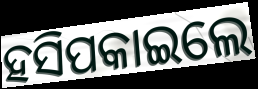
ହସିପକାଇଲେ